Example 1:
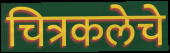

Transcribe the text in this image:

चित्रकलेचे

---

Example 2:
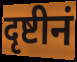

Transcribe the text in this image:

दृष्टीनं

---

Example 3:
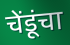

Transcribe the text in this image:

चेंडूंचा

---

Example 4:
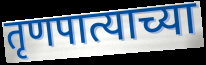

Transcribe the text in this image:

तृणपात्याच्या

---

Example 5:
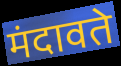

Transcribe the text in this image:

मंदावते